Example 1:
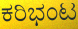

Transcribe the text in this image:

ಕರಿಭಂಟ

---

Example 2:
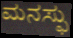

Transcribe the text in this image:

ಮನಸ್ಫು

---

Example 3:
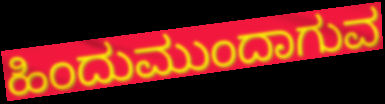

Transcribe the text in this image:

ಹಿಂದುಮುಂದಾಗುವ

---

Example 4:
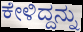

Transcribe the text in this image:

ಕೇಳಿದ್ದನ್ನು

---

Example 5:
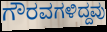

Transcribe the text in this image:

ಗೌರವಗಳಿದ್ದವು